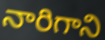
నారిగాని